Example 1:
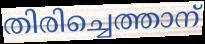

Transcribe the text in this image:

തിരിച്ചെത്താന്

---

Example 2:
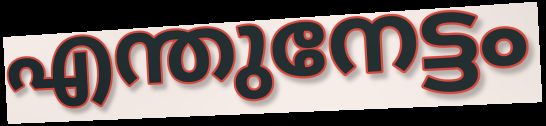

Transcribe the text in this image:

എന്തുനേട്ടം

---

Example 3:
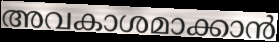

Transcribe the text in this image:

അവകാശമാക്കാൻ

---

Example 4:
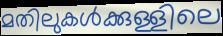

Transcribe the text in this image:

മതിലുകൾക്കുള്ളിലെ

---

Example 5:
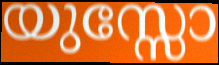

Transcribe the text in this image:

യുസ്സോ